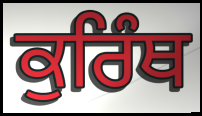
ਕੁਰਿੰਥ